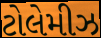
ટોલેમીઝ